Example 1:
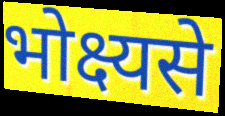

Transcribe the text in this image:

भोक्ष्यसे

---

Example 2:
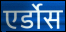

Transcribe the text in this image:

एर्डोस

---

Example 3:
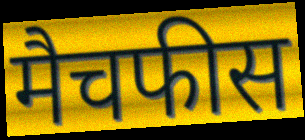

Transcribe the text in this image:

मैचफीस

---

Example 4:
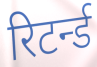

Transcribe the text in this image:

रिटर्न्ड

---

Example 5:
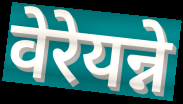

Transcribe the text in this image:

वेरेयन्ने